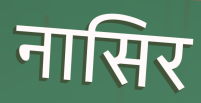
नासिर